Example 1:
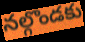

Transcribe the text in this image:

నల్గొండకు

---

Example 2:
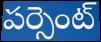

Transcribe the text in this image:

పర్సెంట్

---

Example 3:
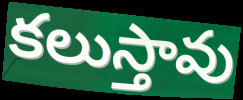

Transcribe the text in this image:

కలుస్తావు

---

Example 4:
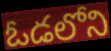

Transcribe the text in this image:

ఓడలోని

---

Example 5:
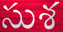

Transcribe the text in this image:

సుశ